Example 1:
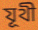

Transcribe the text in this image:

যূথী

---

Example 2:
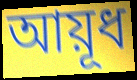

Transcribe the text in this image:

আয়ূধ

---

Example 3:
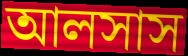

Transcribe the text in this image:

আলসাস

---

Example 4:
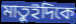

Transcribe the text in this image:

মাতুইদিকে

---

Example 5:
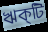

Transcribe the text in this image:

ঋক্‌টি